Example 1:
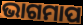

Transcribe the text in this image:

ଭାଗମାପ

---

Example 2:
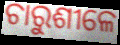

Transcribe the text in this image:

ଚାରୁଶୀଳେ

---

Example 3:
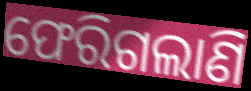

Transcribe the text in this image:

ଫେରିଗଲାଣି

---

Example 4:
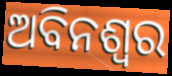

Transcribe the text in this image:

ଅବିନଶ୍ଵର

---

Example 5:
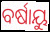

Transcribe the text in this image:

ବର୍ଷାୟୁ